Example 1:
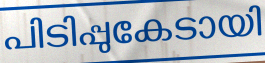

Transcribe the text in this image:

പിടിപ്പുകേടായി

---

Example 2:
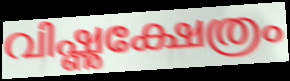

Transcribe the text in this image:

വിഷ്ണുക്ഷേത്രം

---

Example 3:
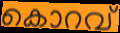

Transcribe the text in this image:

കൊറവ്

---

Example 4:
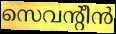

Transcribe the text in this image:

സെവന്റീൻ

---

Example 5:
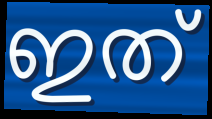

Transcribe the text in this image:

ഇത്